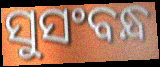
ସୁସଂବନ୍ଧ